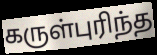
கருள்புரிந்த